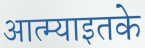
आत्म्याइतके